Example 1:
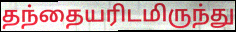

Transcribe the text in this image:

தந்தையரிடமிருந்து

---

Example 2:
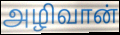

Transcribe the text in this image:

அழிவான்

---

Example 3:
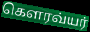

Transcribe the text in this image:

கௌரவ்யர்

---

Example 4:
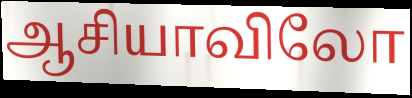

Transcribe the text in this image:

ஆசியாவிலோ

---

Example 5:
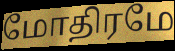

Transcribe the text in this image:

மோதிரமே